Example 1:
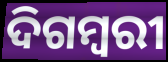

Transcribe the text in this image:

ଦିଗମ୍ୱରୀ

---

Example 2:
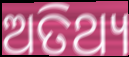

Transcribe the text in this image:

ଅତିଥ୍ୟ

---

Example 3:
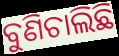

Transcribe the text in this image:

ବୁଣିଚାଲିଛି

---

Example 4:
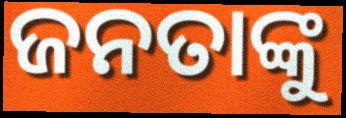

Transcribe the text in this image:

ଜନତାଙ୍କୁ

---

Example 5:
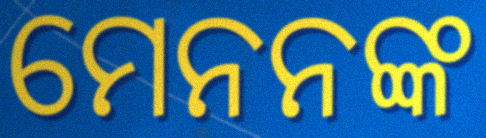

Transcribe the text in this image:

ମେନନଙ୍କ